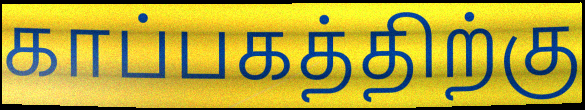
காப்பகத்திற்கு